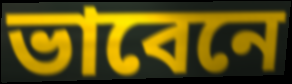
ভাবেনে